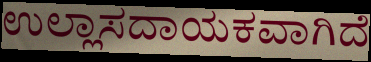
ಉಲ್ಲಾಸದಾಯಕವಾಗಿದೆ